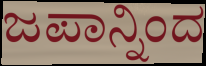
ಜಪಾನ್ನಿಂದ